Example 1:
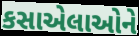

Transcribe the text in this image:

કસાએલાઓને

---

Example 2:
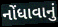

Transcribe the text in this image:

નોંધાવાનું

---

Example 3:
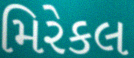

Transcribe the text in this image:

મિરેકલ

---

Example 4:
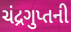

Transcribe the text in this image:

ચંદ્રગુપ્તની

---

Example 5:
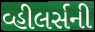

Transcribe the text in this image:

વ્હીલર્સની